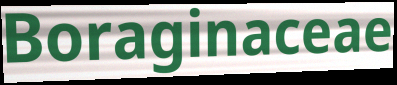
Boraginaceae